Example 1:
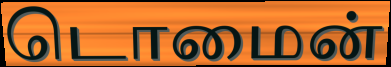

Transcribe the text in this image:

டொமைன்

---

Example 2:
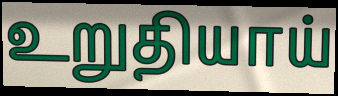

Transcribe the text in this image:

உறுதியாய்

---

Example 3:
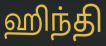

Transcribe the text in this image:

ஹிந்தி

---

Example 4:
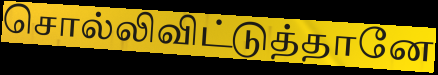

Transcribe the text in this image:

சொல்லிவிட்டுத்தானே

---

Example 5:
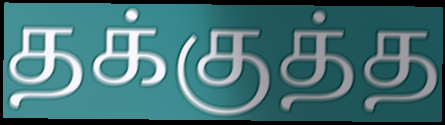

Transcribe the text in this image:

தக்குத்த